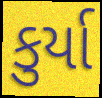
કુર્યા